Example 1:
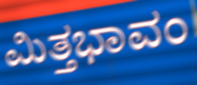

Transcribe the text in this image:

ಮಿತ್ತಭಾವಂ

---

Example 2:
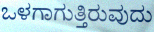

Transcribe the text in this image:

ಒಳಗಾಗುತ್ತಿರುವುದು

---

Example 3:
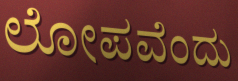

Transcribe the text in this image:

ಲೋಪವೆಂದು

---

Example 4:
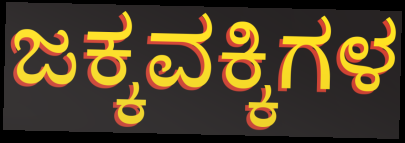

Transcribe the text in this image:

ಜಕ್ಕವಕ್ಕಿಗಳ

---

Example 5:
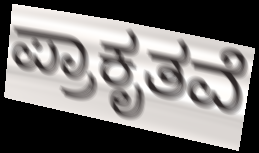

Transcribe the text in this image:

ಪ್ರಾಕೃತವೆ